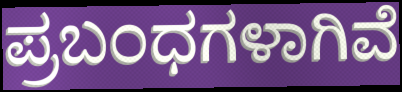
ಪ್ರಬಂಧಗಳಾಗಿವೆ